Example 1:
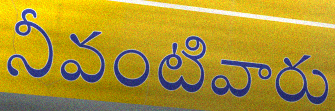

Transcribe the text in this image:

నీవంటివారు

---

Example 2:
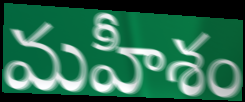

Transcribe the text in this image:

మహీశం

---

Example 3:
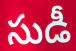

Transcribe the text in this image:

సుడీ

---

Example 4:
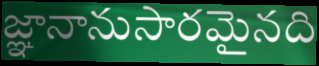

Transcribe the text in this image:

జ్ఞానానుసారమైనది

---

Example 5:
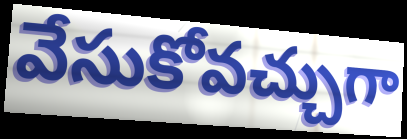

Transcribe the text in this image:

వేసుకోవచ్చుగా